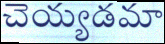
చెయ్యడమా